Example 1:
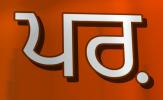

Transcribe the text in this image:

ਪਰ਼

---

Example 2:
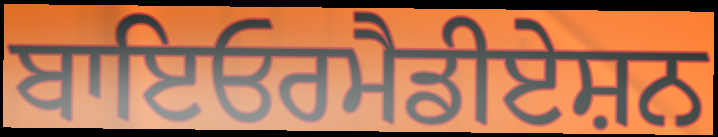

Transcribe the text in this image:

ਬਾਇਓਰਮੈਡੀਏਸ਼ਨ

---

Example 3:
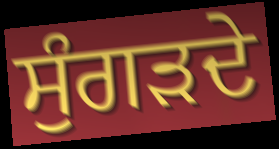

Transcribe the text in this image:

ਸੁੰਗੜਦੇ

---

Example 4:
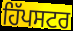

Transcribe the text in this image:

ਹਿੱਪਸਟਰ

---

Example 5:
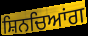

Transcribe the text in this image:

ਸ਼ਿਨਚਿਆਂਗ